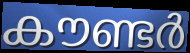
കൗണ്ടർ